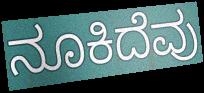
ನೂಕಿದೆವು